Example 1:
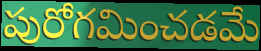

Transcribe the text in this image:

పురోగమించడమే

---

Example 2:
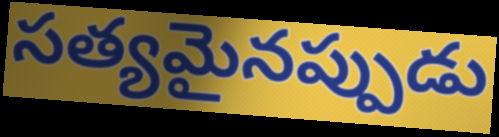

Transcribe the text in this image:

సత్యమైనప్పుడు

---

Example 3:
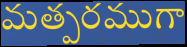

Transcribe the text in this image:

మత్పరముగా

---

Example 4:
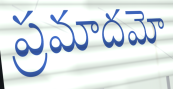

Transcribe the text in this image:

ప్రమాదమో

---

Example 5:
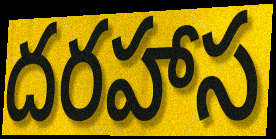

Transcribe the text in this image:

దరహాస